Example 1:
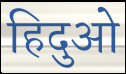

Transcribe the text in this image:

हिदुओ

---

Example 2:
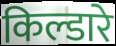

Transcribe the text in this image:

किल्डारे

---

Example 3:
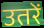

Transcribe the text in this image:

उतरें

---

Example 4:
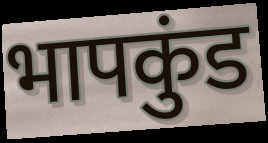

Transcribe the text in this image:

भापकुंड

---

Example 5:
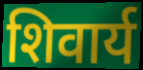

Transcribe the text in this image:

शिवार्य